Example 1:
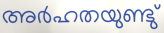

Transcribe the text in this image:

അർഹതയുണ്ടു്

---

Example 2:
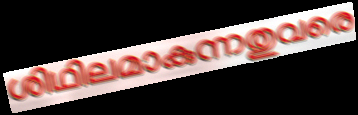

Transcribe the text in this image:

ശിഥിലമാകുന്നതുവരെ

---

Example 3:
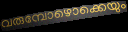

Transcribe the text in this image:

വരുമ്പോഴൊക്കെയും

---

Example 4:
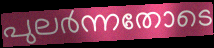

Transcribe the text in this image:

പുലർന്നതോടെ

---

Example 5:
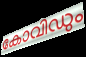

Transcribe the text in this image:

കോവിഡും